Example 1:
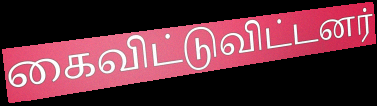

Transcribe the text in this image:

கைவிட்டுவிட்டனர்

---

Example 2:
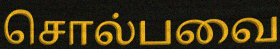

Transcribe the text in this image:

சொல்பவை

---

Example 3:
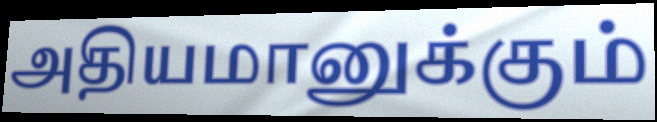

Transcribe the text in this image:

அதியமானுக்கும்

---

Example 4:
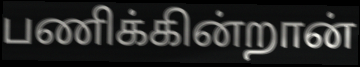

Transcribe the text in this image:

பணிக்கின்றான்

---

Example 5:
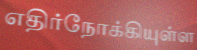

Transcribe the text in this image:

எதிர்நோக்கியுள்ள